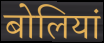
बोलियां